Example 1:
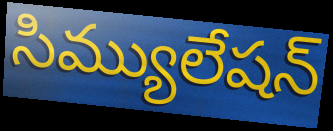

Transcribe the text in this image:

సిమ్యులేషన్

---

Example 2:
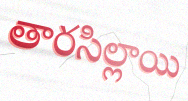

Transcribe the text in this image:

తారసిల్లాయి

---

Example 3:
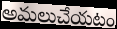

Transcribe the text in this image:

అమలుచేయటం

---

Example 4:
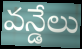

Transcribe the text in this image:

వన్డేలు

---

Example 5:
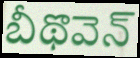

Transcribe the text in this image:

బీథొవెన్